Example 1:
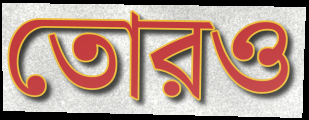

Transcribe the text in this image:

তোরও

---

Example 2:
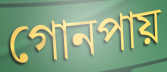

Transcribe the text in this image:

গোনপায়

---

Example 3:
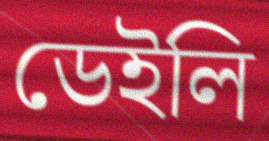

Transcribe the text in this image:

ডেইলি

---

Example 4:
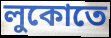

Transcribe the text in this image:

লুকোতে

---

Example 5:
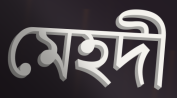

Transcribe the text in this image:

মেহদী